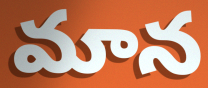
మాన